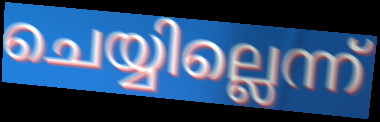
ചെയ്യില്ലെന്ന്